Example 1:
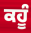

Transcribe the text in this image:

ਕਹੂੰ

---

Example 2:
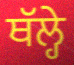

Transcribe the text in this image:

ਥੱਲ੍ਹੇ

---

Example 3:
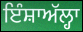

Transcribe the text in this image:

ਇੰਸ਼ਾਅੱਲ੍ਹਾ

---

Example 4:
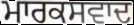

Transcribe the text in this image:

ਮਾਰਕਸਵਾਦ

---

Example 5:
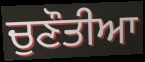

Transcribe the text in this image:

ਚੁਣੌਤੀਆ